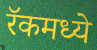
रॅकमध्ये